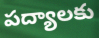
పద్యాలకు